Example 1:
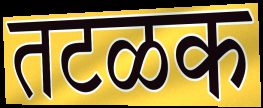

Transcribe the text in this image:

तटळक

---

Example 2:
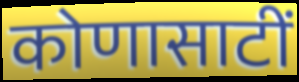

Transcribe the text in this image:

कोणासाटीं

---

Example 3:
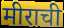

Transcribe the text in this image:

मीराची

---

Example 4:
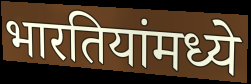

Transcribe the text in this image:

भारतियांमध्ये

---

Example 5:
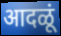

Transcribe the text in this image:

आदळूं